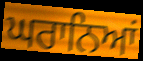
ਘਰਾਨਿਆਂ